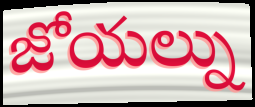
జోయల్ను